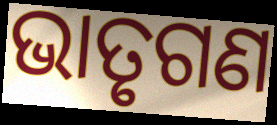
ଭାତୃଗଣ